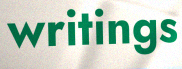
writings